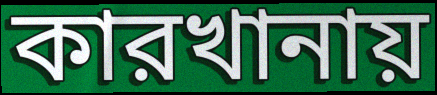
কারখানায়